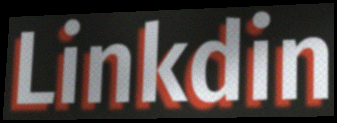
Linkdin